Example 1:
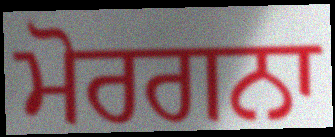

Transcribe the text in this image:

ਮੋਰਗਨਾ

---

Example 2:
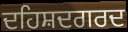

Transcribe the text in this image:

ਦਹਿਸ਼ਦਗਰਦ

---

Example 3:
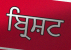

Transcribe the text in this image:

ਬ੍ਰਿਸ਼ਟ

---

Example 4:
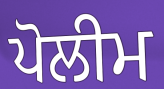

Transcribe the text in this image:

ਪੋਲੀਮ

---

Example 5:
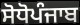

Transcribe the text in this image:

ਸੋਧੋਪੰਜਾਬ